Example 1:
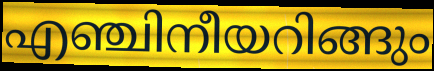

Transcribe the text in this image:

എഞ്ചിനീയറിങ്ങും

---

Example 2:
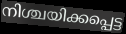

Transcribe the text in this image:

നിശ്ചയിക്കപ്പെട്ട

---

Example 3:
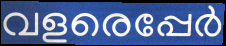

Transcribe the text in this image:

വളരെപ്പേർ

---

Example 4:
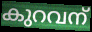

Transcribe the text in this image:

കുറവന്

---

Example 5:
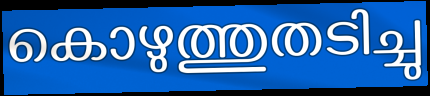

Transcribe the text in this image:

കൊഴുത്തുതടിച്ചു